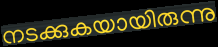
നടക്കുകയായിരുന്നു